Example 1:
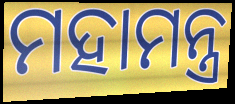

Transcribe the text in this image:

ମହାମନ୍ତ୍ର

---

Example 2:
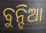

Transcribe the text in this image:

ବୁନ୍ଦିଆ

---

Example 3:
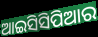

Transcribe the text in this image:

ଆଇସିସିପିଆର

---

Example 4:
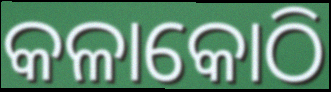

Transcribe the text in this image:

କଳାକୋଠି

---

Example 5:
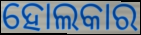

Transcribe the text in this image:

ହୋଲକାର